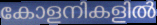
കോളനികളിൽ